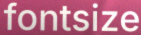
fontsize